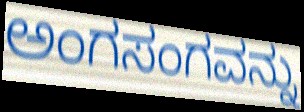
ಅಂಗಸಂಗವನ್ನು